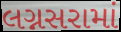
લગ્નસરામાં